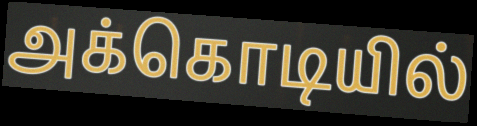
அக்கொடியில்